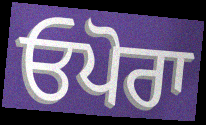
ਓਪੋਰਾ